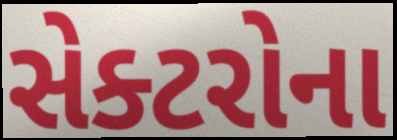
સેક્ટરોના